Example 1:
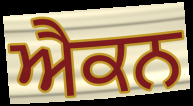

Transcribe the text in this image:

ਐਕਨ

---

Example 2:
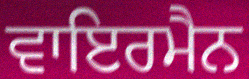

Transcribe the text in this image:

ਵਾਇਰਮੈਨ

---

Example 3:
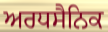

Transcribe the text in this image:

ਅਰਧਸੈਨਿਕ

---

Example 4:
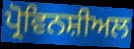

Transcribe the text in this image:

ਪ੍ਰੋਵਿਨਸ਼ੀਅਲ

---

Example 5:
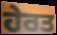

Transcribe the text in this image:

ਹੇਰਤ